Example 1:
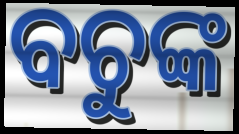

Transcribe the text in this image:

ବଚୁଙ୍କ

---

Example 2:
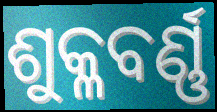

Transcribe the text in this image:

ଶୁକ୍ଳବର୍ଣ୍ଣ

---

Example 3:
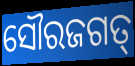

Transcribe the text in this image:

ସୌରଜଗତ୍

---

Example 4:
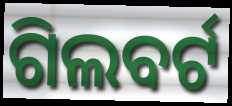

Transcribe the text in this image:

ଗିଲବର୍ଟ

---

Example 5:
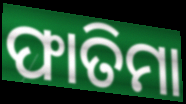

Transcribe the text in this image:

ଫାତିମା